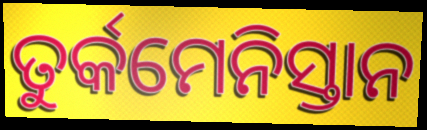
ତୁର୍କମେନିସ୍ତାନ